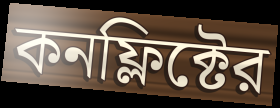
কনফ্লিক্টের